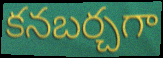
కనబర్చగా